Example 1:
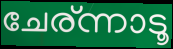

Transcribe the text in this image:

ചേര്ന്നാടൂ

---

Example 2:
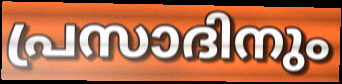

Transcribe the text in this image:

പ്രസാദിനും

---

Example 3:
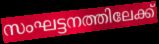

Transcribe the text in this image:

സംഘട്ടനത്തിലേക്ക്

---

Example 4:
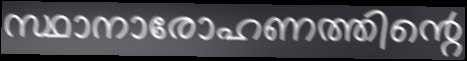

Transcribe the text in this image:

സ്ഥാനാരോഹണത്തിന്റെ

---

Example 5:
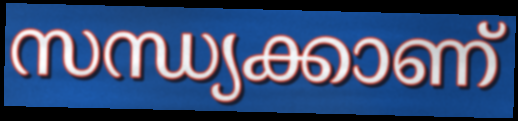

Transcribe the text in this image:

സന്ധ്യക്കാണ്